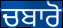
ਚਬਾਰੋ